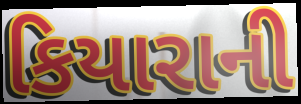
કિયારાની